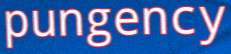
pungency